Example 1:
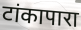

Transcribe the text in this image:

टांकापारा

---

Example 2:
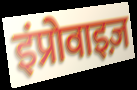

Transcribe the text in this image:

इंप्रोवाइज़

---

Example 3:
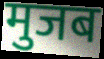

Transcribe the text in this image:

मुजब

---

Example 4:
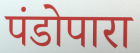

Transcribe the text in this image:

पंडोपारा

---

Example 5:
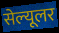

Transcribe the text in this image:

सेल्यूलर